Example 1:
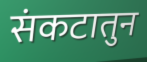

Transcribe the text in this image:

संकटातुन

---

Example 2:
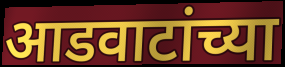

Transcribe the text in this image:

आडवाटांच्या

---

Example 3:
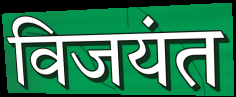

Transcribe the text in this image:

विजयंत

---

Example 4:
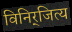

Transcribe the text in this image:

विनिर्जित्य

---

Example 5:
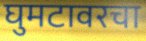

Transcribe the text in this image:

घुमटावरचा